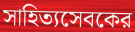
সাহিত্যসেবকের